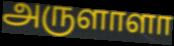
அருளாளா